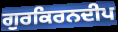
ਗੁਰਕਿਰਨਦੀਪ